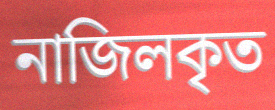
নাজিলকৃত